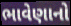
ભાવેણાનો